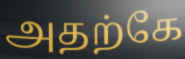
அதற்கே